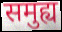
समुह्य